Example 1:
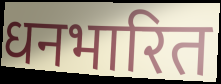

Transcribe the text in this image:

धनभारित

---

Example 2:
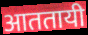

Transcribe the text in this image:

आततायी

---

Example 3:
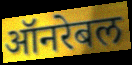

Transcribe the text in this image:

ऑनरेबल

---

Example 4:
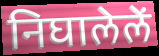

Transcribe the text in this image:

निघालेलें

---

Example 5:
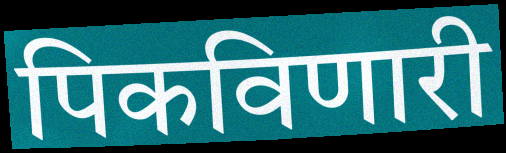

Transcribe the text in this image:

पिकविणारी